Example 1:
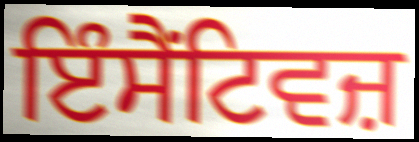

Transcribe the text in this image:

ਇੰਸੈਂਟਿਵਜ਼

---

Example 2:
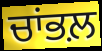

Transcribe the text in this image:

ਚਾਂਭਲ਼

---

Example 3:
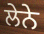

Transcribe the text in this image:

ਲੇਨੇ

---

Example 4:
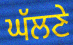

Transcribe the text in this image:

ਘੱਲਣੇ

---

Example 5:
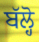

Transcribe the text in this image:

ਬੱਲ੍ਹੋ